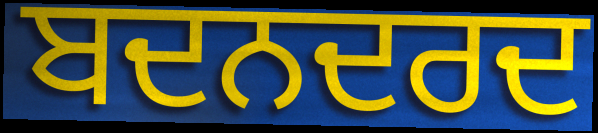
ਬਦਨਦਰਦ